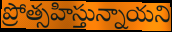
ప్రోత్సహిస్తున్నాయని